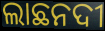
ଲାଛନଦୀ